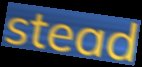
stead